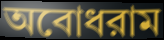
অবোধরাম